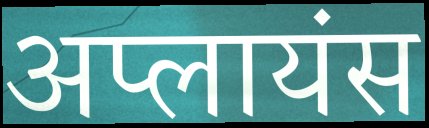
अप्‍लायंस